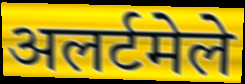
अलर्टमेले